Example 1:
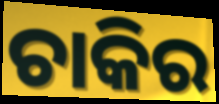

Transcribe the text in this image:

ଚାକିର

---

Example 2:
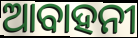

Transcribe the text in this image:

ଆବାହନୀ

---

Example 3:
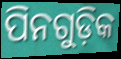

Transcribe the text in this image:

ପିନଗୁଡ଼ିକ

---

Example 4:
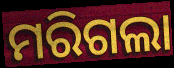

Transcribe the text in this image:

ମରିଗଲା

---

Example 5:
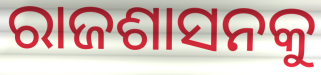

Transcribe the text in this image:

ରାଜଶାସନକୁ